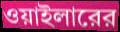
ওয়াইলারের